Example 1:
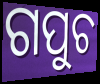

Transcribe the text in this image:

ଗପୁଚ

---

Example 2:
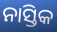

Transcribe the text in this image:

ନାସ୍ତିକ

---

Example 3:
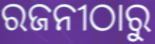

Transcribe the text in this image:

ରଜନୀଠାରୁ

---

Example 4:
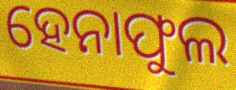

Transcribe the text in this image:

ହେନାଫୁଲ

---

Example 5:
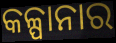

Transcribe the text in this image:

କଳ୍ପାନାର